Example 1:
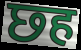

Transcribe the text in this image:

छ्ह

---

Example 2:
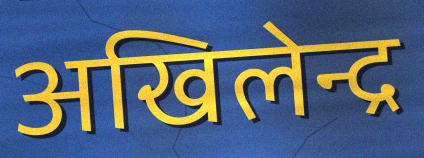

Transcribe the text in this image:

अखिलेन्द्र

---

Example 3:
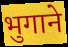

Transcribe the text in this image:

भुगाने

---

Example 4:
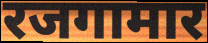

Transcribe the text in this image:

रजगामार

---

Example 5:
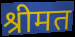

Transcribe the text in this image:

श्रीमत